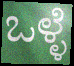
ಒಳ್ಳೆ